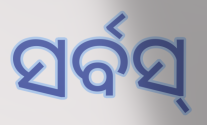
ସର୍ବସ୍